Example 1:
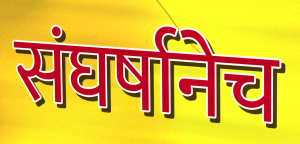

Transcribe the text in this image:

संघर्षानेच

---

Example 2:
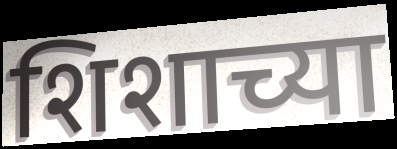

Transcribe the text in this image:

शिशाच्या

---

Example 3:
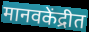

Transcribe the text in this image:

मानवकेंद्रीत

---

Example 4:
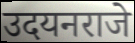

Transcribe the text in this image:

उदयनराजे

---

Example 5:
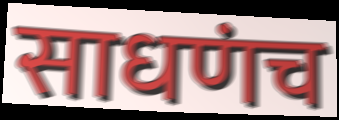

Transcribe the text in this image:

साधणंच